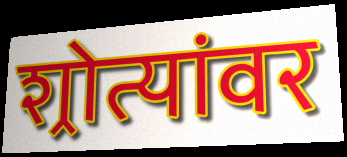
श्रोत्यांवर